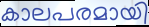
കാലപരമായി